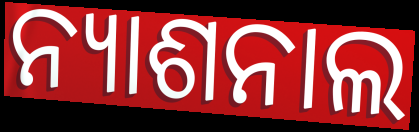
ନ୍ୟାଶନାଲ